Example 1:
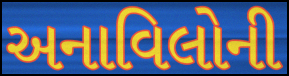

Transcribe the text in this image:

અનાવિલોની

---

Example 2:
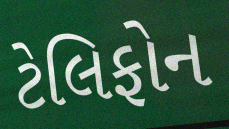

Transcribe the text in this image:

ટેલિફોન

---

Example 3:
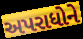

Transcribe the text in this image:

અપરાધોને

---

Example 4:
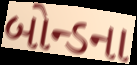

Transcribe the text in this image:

બોન્ડના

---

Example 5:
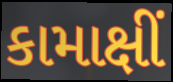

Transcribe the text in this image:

કામાક્ષીં